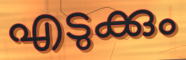
എടുക്കും